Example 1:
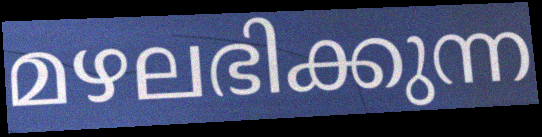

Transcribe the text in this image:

മഴലഭിക്കുന്ന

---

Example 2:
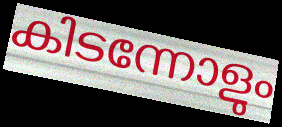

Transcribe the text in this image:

കിടന്നോളും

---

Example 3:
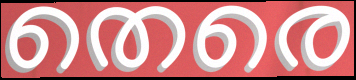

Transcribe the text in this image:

തെരെ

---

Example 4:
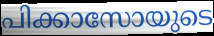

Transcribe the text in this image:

പിക്കാസോയുടെ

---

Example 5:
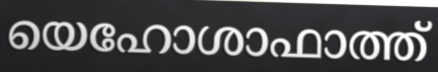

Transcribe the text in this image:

യെഹോശാഫാത്ത്